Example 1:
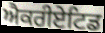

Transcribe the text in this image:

ਐਕਰੀਏਟਿਡ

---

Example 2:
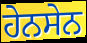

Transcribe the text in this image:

ਹੇਨਸੇਨ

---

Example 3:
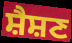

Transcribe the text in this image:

ਸ਼ੈਸ਼ਣ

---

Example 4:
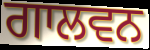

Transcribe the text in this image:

ਗਾਲਵਨ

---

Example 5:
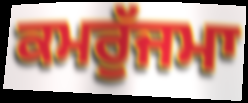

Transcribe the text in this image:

ਕਮਰੁੱਜਮਾ